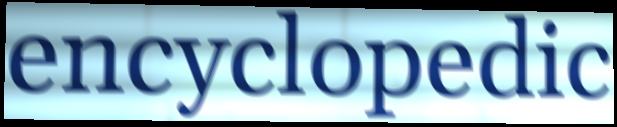
encyclopedic